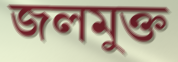
জলমুক্ত